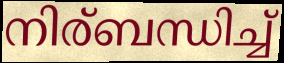
നിര്ബന്ധിച്ച്